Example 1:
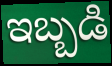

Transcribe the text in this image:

ఇబ్బడి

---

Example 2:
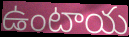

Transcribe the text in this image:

ఉంటాయ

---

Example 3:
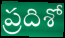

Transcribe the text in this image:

ప్రదిశో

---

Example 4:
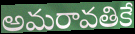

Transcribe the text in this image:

అమరావతికే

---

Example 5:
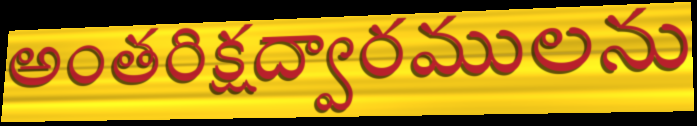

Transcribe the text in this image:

అంతరిక్షద్వారములను